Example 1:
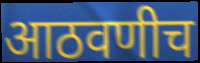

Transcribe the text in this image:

आठवणीच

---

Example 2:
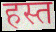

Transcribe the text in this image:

हस्त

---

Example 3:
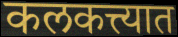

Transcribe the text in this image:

कलकत्त्यात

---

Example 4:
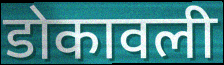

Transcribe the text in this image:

डोकावली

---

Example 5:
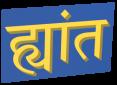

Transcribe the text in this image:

ह्यांत